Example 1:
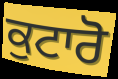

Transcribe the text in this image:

ਕੁਟਾਰੋ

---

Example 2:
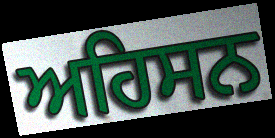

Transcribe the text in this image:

ਅਹਿਸਨ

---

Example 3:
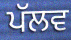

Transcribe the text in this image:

ਪੱਲਵ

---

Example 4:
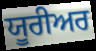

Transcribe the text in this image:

ਯੂਰੀਅਰ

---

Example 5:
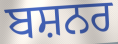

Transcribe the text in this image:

ਬਸ਼ਨਰ